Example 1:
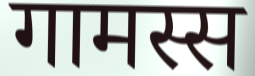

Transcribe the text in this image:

गामस्स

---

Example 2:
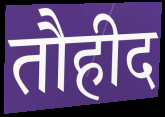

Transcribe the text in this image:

तौहीद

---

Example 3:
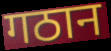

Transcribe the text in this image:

गठान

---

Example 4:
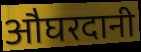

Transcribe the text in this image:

औघरदानी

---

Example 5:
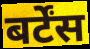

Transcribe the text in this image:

बर्टेंस